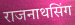
राजनाथसिंग